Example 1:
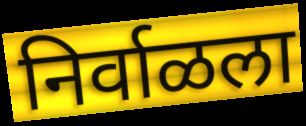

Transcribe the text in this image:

निर्वाळला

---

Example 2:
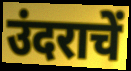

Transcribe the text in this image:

उंदराचें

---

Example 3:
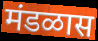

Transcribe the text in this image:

मंडळास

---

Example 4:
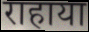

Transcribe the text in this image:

राहाया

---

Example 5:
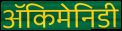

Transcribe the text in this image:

ॲकिमेनिडी